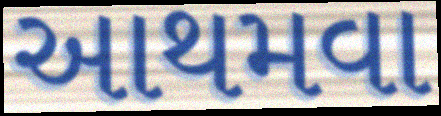
આથમવા